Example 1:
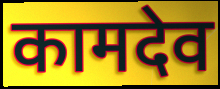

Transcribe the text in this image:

कामदेव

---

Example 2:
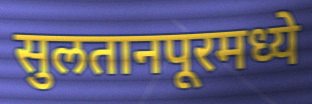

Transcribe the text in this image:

सुलतानपूरमध्ये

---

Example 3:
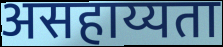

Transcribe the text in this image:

असहाय्यता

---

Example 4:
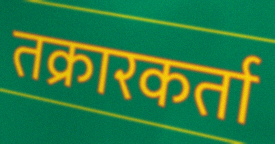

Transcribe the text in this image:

तक्रारकर्ता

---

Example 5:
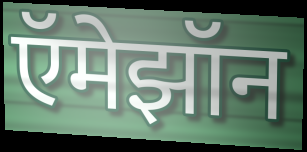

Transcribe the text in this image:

ऍमेझॉन